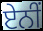
ਏਨੀਂ